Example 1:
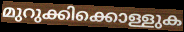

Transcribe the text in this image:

മുറുക്കിക്കൊള്ളുക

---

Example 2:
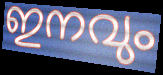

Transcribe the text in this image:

ഇനവും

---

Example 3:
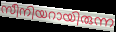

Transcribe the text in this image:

സീനിയറായിരുന്ന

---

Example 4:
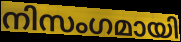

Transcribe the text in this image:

നിസംഗമായി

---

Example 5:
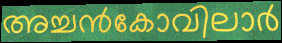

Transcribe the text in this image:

അച്ചൻകോവിലാർ